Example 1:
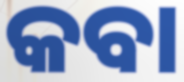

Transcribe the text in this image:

କବା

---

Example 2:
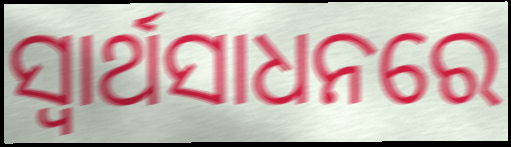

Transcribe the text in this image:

ସ୍ବାର୍ଥସାଧନରେ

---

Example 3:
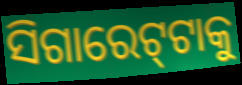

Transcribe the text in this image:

ସିଗାରେଟ୍‍ଟାକୁ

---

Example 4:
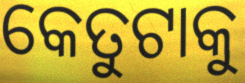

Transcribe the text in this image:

କେତୁଟାକୁ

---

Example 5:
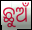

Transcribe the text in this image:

ଛୁଅଁ